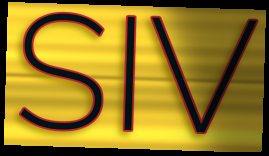
SIV